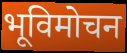
भूविमोचन